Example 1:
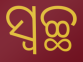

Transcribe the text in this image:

ସ୍ଵଚ୍ଛ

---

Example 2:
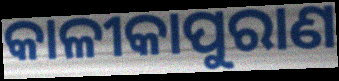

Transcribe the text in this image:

କାଳୀକାପୁରାଣ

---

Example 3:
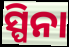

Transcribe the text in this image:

ସ୍ପିନା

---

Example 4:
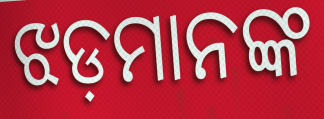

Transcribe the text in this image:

ଝଡ଼ମାନଙ୍କ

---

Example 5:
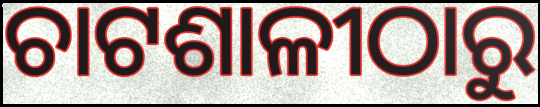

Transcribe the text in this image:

ଚାଟଶାଳୀଠାରୁ